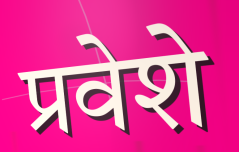
प्रवेशे